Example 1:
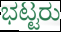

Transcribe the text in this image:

ಭಟ್ಟರು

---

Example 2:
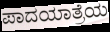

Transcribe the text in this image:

ಪಾದಯಾತ್ರೆಯ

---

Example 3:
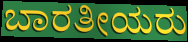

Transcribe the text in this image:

ಬಾರತೀಯರು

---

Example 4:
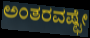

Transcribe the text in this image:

ಅಂತರವಷ್ಟೇ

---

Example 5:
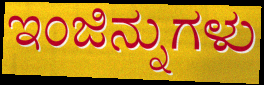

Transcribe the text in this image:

ಇಂಜಿನ್ನುಗಳು